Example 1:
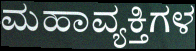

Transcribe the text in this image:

ಮಹಾವ್ಯಕ್ತಿಗಳ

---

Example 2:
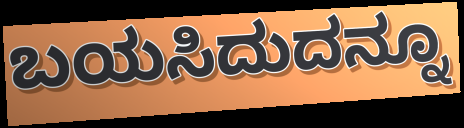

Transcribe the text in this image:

ಬಯಸಿದುದನ್ನೂ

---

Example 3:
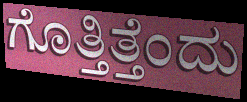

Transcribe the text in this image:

ಗೊತ್ತಿತ್ತೆಂದು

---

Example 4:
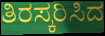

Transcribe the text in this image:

ತಿರಸ್ಕರಿಸಿದ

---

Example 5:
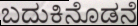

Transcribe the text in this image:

ಬದುಕಿನೊಡನೆ